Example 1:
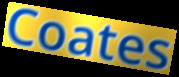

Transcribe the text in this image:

Coates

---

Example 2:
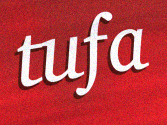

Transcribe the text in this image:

tufa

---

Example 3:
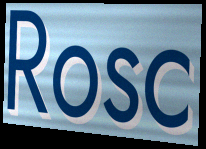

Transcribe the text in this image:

Rosc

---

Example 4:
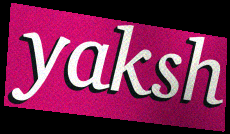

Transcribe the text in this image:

yaksh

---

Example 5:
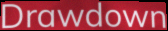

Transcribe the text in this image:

Drawdown